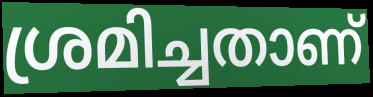
ശ്രമിച്ചതാണ്